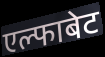
एल्फाबेट